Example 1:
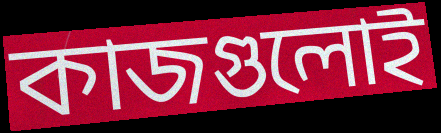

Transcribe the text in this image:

কাজগুলোই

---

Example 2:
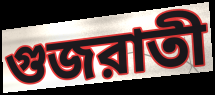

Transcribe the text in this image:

গুজরাতী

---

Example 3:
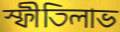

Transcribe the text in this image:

স্ফীতিলাভ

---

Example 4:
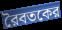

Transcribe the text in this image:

রৈবতকের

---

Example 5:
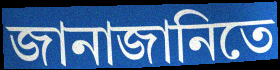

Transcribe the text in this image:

জানাজানিতে